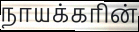
நாயக்கரின்